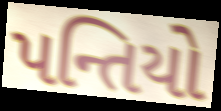
પન્તિયો